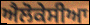
ਐਲੋਕੇਸੀਆ